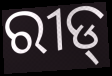
ରୀଡ୍